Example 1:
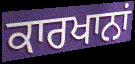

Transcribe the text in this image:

ਕਾਰਖਾਨਾਂ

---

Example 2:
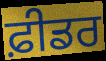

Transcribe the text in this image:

ਫ਼ੀਡਰ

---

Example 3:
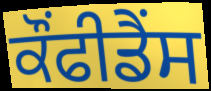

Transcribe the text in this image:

ਕੌਂਫੀਡੈਂਸ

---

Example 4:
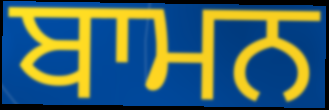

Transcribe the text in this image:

ਬਾਮਨ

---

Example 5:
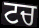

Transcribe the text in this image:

ਟਚ